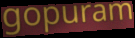
gopuram